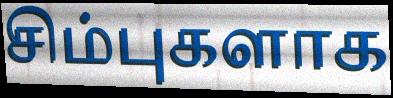
சிம்புகளாக